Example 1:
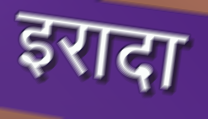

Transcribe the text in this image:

इरादा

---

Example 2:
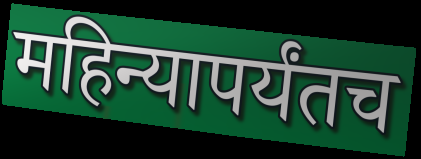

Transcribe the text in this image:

महिन्यापर्यंतच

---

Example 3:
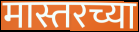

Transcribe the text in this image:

मास्तरच्या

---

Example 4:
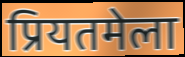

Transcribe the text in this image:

प्रियतमेला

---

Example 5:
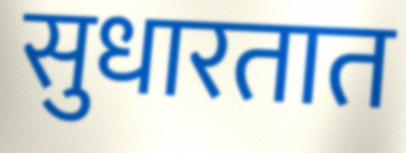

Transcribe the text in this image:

सुधारतात